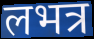
लभत्र